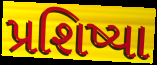
પ્રશિષ્યા